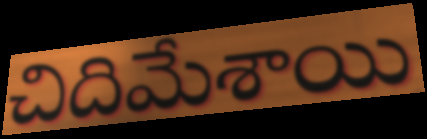
చిదిమేశాయి